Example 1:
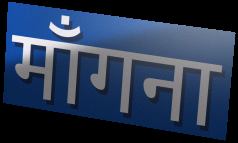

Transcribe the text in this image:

माँगना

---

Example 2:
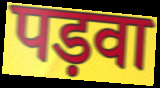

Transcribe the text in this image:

पड़वा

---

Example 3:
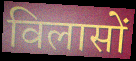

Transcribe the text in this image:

विलासों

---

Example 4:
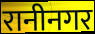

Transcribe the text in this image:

रानीनगर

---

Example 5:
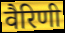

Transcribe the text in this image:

वैरिणी